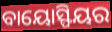
ବାୟୋସ୍ଫିୟର